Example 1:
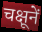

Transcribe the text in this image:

चक्षूनें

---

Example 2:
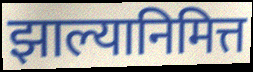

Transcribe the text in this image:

झाल्यानिमित्त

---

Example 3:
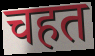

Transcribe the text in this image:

चहत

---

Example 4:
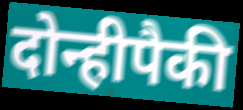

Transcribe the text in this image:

दोन्हीपैकी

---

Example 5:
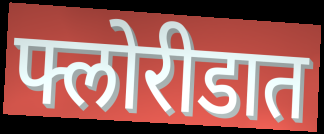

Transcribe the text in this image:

फ्लोरीडात